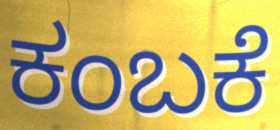
ಕಂಬಕೆ